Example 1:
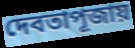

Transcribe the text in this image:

দেবতাপূজায়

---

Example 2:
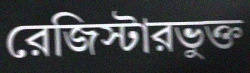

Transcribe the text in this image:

রেজিস্টারভুক্ত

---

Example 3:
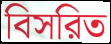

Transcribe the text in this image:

বিসরিত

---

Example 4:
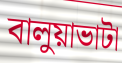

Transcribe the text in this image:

বালুয়াভাটা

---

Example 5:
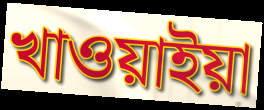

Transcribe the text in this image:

খাওয়াইয়া